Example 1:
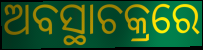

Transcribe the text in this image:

ଅବସ୍ଥାଚକ୍ରରେ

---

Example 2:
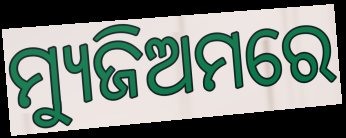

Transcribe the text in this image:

ମ୍ୟୁଜିଅମରେ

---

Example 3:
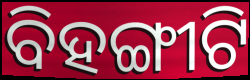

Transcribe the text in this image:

ବିହଙ୍ଗୀଟି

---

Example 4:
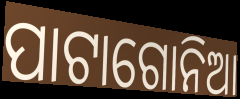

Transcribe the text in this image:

ପାଟାଗୋନିଆ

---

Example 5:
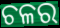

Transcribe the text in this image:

ଚଳର